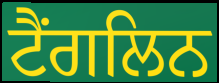
ਟੈਂਗਲਿਨ